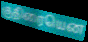
குதிரையென